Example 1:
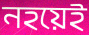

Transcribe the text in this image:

নহয়েই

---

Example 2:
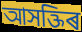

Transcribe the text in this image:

আসক্তিৰ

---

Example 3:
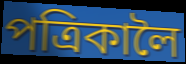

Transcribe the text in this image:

পত্ৰিকালৈ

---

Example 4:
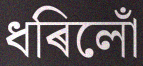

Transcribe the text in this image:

ধৰিলোঁ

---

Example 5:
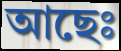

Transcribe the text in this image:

আছেঃ